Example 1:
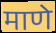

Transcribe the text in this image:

माणे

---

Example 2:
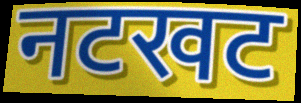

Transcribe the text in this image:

नटखट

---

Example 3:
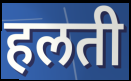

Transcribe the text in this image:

हलती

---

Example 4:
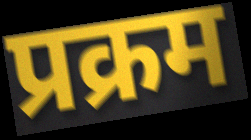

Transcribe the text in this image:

प्रक्रम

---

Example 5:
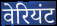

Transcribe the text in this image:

वेरियंट